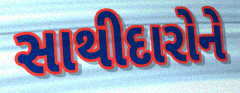
સાથીદારોને